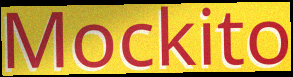
Mockito